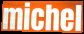
michel